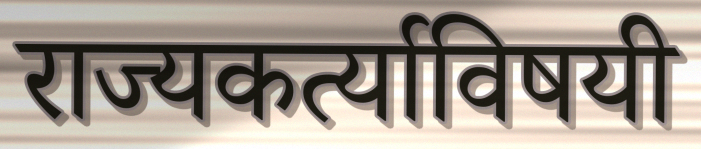
राज्यकर्त्याविषयी